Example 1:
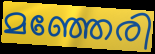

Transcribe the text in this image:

മഞ്ഞേരി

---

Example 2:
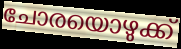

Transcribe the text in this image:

ചോരയൊഴുക്ക്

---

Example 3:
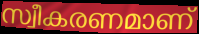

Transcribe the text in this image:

സ്വീകരണമാണ്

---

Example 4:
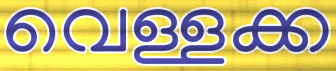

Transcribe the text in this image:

വെള്ളക്ക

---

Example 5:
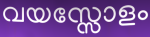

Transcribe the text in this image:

വയസ്സോളം